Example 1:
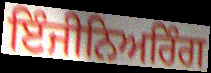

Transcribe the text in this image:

ਇੰਜੀਨਿਅਰਿੰਗ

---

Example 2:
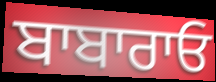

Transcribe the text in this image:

ਬਾਬਾਰਾਓ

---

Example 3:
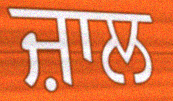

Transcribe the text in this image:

ਜ਼ਾਲ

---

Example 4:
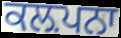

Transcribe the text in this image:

ਕਲ਼ਪਨਾ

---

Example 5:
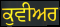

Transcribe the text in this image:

ਕੁਵੀਅਰ